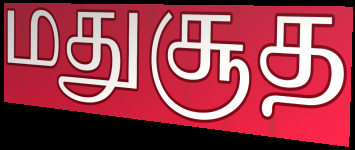
மதுசூத